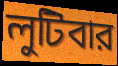
লুটিবার